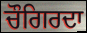
ਚੌਗਿਰਦਾ